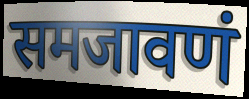
समजावणं